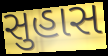
સુહાસ